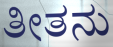
ತೀತನು